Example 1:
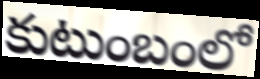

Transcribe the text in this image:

కుటుంబంలో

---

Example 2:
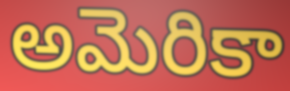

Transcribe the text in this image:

అమెరికా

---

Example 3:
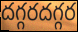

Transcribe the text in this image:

దగ్గరదగ్గర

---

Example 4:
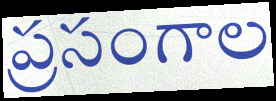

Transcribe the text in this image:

ప్రసంగాల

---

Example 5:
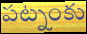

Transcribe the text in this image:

పట్నంకు